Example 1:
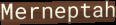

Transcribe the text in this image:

Merneptah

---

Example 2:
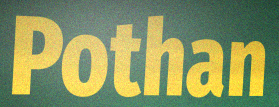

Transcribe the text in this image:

Pothan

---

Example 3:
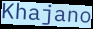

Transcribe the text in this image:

Khajano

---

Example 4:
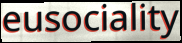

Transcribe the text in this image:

eusociality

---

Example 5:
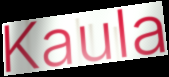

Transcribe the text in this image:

Kaula